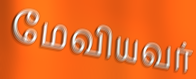
மேவியவர்